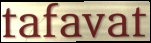
tafavat